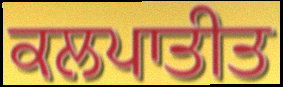
ਕਲਪਾਤੀਤ